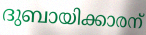
ദുബായിക്കാരന്